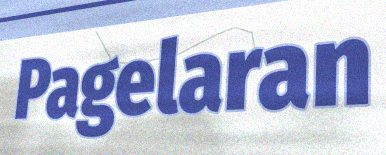
Pagelaran